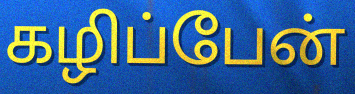
கழிப்பேன்